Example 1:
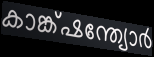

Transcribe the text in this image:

കാങ്ക്ഷന്ത്യോർ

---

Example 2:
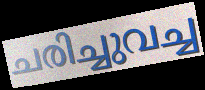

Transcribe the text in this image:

ചരിച്ചുവച്ച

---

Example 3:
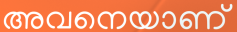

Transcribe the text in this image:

അവനെയാണ്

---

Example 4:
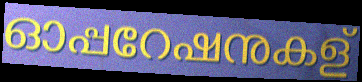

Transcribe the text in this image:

ഓപ്പറേഷനുകള്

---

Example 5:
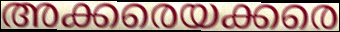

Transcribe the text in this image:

അക്കരെയക്കരെ